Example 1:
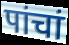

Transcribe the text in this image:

पांचां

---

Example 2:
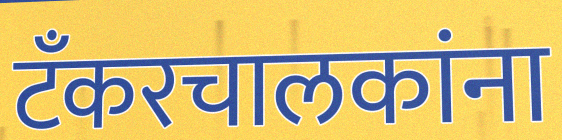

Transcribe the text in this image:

टँकरचालकांना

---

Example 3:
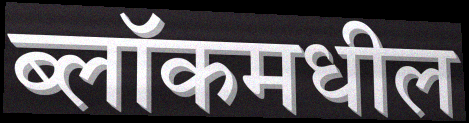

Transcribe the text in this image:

ब्लॉकमधील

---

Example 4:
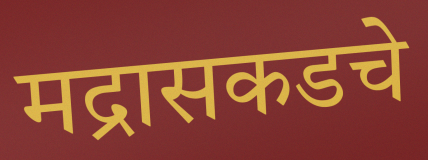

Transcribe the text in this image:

मद्रासकडचे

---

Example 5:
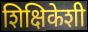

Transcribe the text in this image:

शिक्षिकेशी